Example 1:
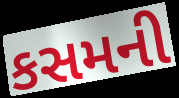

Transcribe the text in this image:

કસમની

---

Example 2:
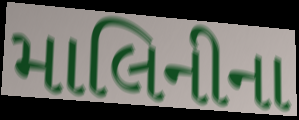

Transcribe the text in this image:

માલિનીના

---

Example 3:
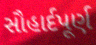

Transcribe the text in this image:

સૌહાર્દપૂર્ણ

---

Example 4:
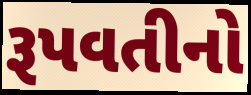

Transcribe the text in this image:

રૂપવતીનો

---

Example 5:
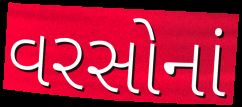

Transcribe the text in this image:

વરસોનાં